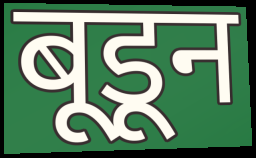
बूडून